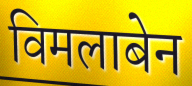
विमलाबेन